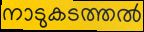
നാടുകടത്തൽ